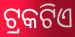
ଟ୍ରକଟିଏ